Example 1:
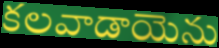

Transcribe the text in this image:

కలవాడాయెను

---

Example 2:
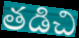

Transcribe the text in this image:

తడిచి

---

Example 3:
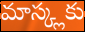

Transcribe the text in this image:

మాస్క్లకు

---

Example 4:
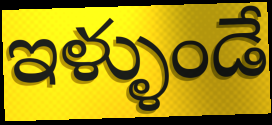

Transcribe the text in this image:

ఇళ్ళుండే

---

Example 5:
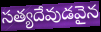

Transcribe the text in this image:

సత్యదేవుడవైన